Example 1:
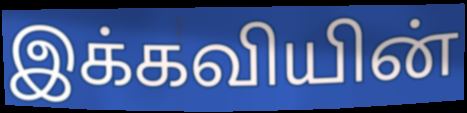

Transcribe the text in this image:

இக்கவியின்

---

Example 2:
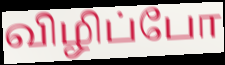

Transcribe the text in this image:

விழிப்போ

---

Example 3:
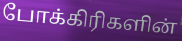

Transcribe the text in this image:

போக்கிரிகளின்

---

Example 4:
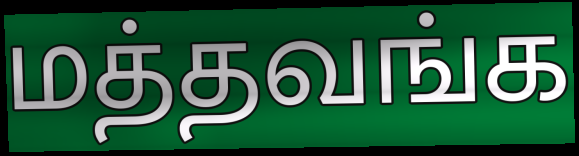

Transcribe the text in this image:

மத்தவங்க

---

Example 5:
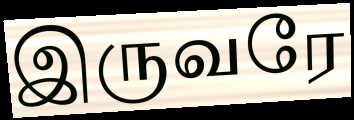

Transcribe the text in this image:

இருவரே